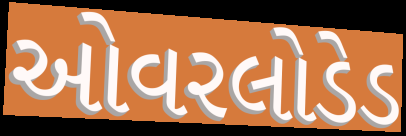
ઓવરલોડેડ